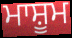
ਮਾਸ਼ੂਮ